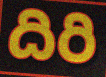
దిరి